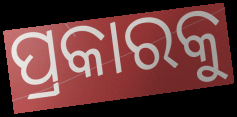
ପ୍ରକାରକୁ